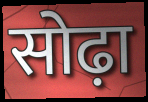
सोढ़ा